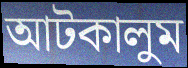
আটকালুম